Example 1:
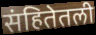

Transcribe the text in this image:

संहितेतली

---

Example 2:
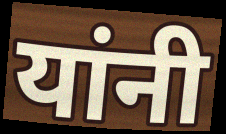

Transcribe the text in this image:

यांनी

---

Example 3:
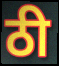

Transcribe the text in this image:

ठी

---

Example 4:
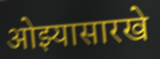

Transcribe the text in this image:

ओझ्यासारखे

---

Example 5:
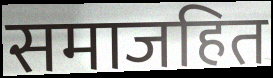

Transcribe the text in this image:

समाजहित